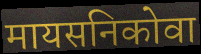
मायसनिकोवा